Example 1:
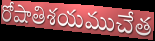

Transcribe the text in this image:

రోషాతిశయముచేత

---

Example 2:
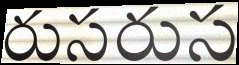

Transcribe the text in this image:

రుసరుస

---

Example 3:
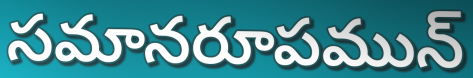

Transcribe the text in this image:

సమానరూపమున్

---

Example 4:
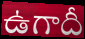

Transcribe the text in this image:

ఉగాదీ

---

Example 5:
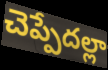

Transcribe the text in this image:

చెప్పేదల్లా